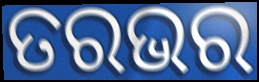
ତରଭର